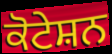
ਕੋਟੇਸ਼ਨ